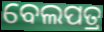
ବେଲପତ୍ର